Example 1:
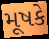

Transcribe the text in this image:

મૂષકે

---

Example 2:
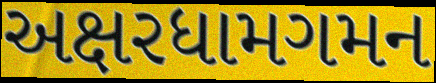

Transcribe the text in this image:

અક્ષરધામગમન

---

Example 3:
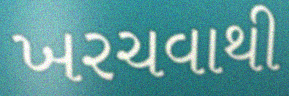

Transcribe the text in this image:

ખરચવાથી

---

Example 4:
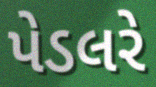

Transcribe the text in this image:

પેડલરે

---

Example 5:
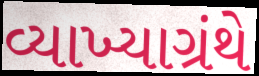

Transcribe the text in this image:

વ્યાખ્યાગ્રંથે